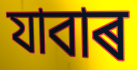
যাবাৰ